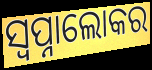
ସ୍ୱପ୍ନାଲୋକର